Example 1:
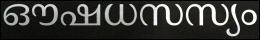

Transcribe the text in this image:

ഔഷധസസ്യം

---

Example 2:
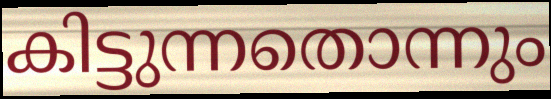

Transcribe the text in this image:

കിട്ടുന്നതൊന്നും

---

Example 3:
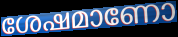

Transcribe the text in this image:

ശേഷമാണോ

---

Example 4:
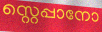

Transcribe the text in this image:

സ്റ്റെപ്പാനോ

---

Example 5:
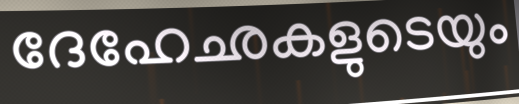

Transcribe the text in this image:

ദേഹേഛകളുടെയും